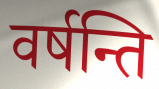
वर्षन्ति